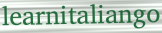
learnitaliango